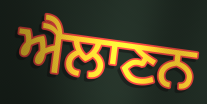
ਐਲਾਣਨ